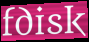
fdisk